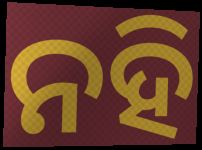
ନହି